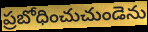
ప్రబోధించుచుండెను